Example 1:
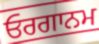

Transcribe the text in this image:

ਓਰਗਾਨਮ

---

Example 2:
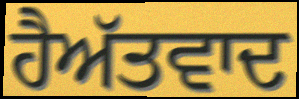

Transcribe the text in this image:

ਹੈਅੱਤਵਾਦ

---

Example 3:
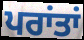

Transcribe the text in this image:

ਪਰਾਂਤਾਂ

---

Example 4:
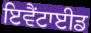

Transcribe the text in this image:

ਇਵੈਂਟਾਈਡ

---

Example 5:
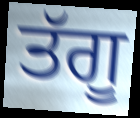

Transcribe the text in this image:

ਤੱਗੂ